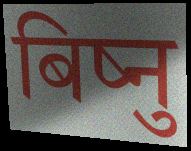
बिष्नु